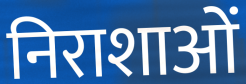
निराशाओं